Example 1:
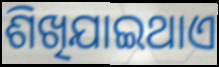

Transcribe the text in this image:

ଶିଖିଯାଇଥାଏ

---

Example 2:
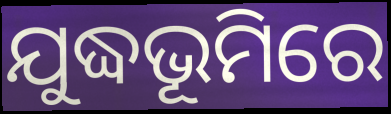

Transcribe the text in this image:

ଯୁଦ୍ଧଭୂମିରେ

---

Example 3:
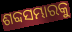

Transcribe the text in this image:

ଶବ୍ଦସମ୍ଭାରକୁ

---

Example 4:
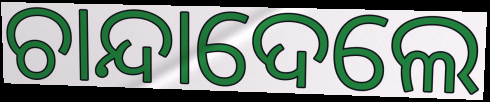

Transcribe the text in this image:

ଚାନ୍ଦାଦେଲେ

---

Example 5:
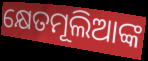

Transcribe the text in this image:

କ୍ଷେତମୂଲିଆଙ୍କ